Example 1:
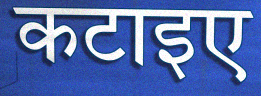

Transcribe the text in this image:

कटाइए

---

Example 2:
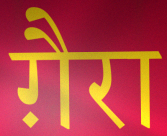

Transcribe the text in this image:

ग़ैरा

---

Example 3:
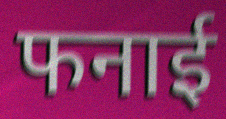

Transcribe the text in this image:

फनाई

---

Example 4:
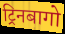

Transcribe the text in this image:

ट्रिनबागो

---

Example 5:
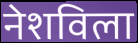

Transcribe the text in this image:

नेशविला